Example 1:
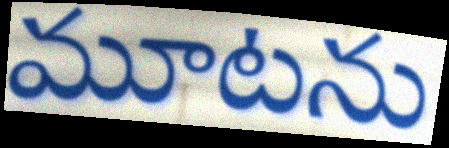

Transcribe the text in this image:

మూటను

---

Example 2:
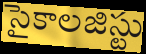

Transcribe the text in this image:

సైకాలజిస్టు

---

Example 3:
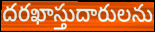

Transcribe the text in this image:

దరఖాస్తుదారులను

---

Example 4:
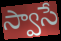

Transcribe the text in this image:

స్వాసే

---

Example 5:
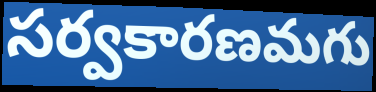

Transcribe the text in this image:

సర్వకారణమగు